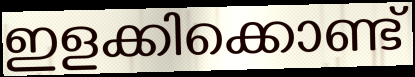
ഇളക്കിക്കൊണ്ട്